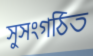
সুসংগঠিত